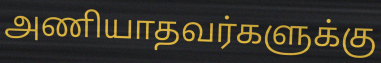
அணியாதவர்களுக்கு